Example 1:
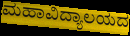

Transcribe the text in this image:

ಮಹಾವಿದ್ಯಾಲಯದ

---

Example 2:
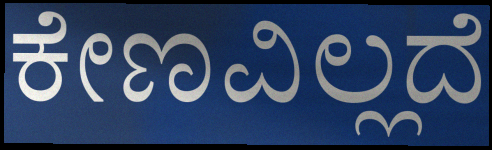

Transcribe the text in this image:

ಕೇಣವಿಲ್ಲದೆ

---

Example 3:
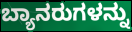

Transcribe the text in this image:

ಬ್ಯಾನರುಗಳನ್ನು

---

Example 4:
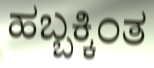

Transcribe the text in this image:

ಹಬ್ಬಕ್ಕಿಂತ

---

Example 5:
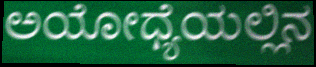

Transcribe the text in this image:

ಅಯೋಧ್ಯೆಯಲ್ಲಿನ